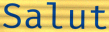
Salut